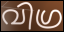
വിഗ്ര